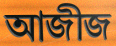
আজীজ